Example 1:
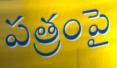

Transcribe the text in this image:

పత్రంపై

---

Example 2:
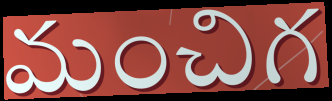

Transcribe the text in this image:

మంచిగ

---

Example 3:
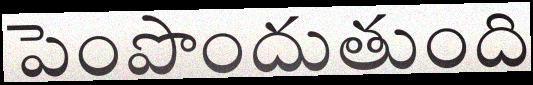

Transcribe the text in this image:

పెంపొందుతుంది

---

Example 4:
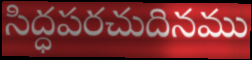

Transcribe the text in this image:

సిద్ధపరచుదినము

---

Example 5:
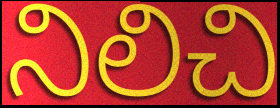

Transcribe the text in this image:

నిలిచి